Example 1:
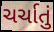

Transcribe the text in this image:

ચર્ચાતું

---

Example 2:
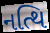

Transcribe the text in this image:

નત્થિ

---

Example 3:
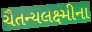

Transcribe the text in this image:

ચૈતન્યલક્ષ્મીના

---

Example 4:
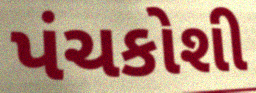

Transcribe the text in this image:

પંચકોશી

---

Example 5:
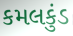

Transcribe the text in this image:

કમલકુંડ